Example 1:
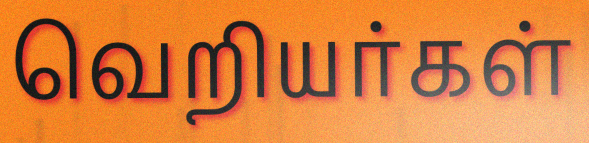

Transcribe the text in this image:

வெறியர்கள்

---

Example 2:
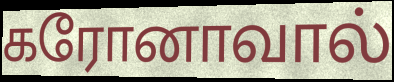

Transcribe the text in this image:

கரோனாவால்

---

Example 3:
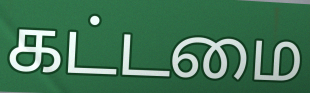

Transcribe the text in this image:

கட்டமை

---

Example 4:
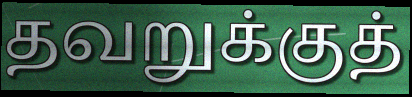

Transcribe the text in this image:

தவறுக்குத்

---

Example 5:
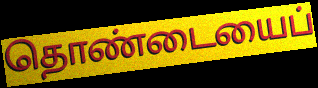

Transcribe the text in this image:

தொண்டையைப்